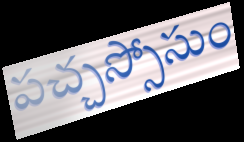
పచ్చస్సోసుం